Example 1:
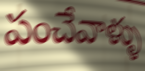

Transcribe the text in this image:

పంచేవాళ్ళు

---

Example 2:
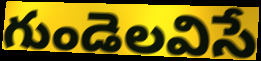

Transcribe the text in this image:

గుండెలవిసే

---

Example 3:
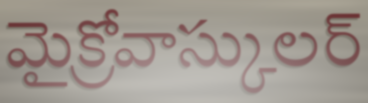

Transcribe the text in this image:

మైక్రోవాస్కులర్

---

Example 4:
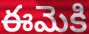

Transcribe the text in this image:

ఈమెకి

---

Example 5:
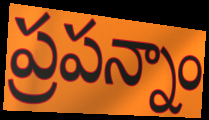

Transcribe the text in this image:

ప్రపన్నాం